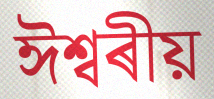
ঈশ্বৰীয়